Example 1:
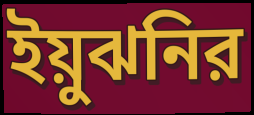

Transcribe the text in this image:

ইয়ুঝনির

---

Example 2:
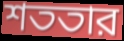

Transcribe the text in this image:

শততার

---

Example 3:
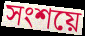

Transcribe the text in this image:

সংশয়ে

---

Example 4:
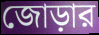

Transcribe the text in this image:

জোড়ার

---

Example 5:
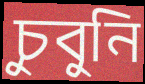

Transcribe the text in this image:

চুবুনি